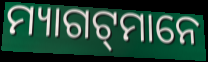
ମ୍ୟାଗଟ୍‌ମାନେ